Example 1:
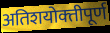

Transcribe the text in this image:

अतिशयोक्‍तीपूर्ण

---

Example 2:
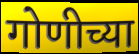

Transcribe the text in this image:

गोणीच्या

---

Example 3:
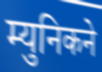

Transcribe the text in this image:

म्युनिकने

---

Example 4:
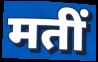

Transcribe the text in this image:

मतीं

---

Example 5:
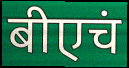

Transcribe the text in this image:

बीएचं